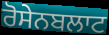
ਰੋਸੇਨਬਲਾਟ